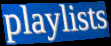
playlists